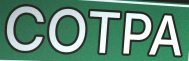
COTPA